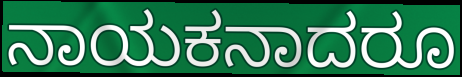
ನಾಯಕನಾದರೂ